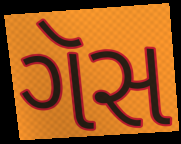
ગૅસ